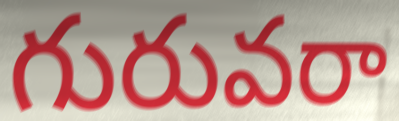
గురువరా